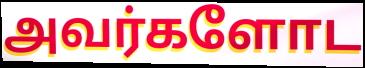
அவர்களோட